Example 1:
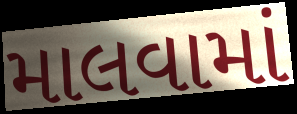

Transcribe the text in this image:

માલવામાં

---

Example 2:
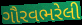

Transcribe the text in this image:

ગૌરવભરેલી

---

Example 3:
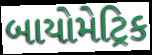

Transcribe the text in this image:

બાયોમેટ્રિક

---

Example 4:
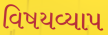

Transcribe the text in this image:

વિષયવ્યાપ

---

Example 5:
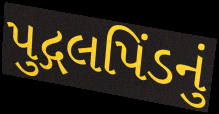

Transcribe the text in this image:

પુદ્ગલપિંડનું